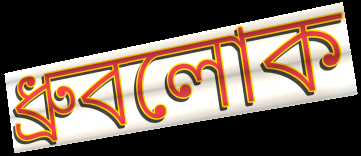
ধ্রুবলোক